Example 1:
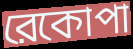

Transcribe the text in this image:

রেকোপা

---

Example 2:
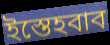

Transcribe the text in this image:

ইস্তেহবাব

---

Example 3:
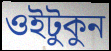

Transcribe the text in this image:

ওইটুকুন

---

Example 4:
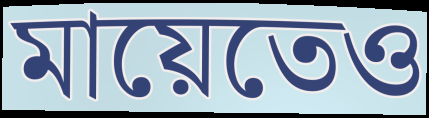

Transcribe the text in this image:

মায়েতেও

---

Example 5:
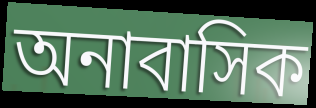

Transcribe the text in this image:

অনাবাসিক